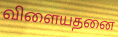
விளையதனை